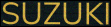
SUZUKI